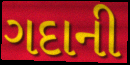
ગદાની